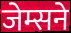
जेम्सने